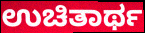
ಉಚಿತಾರ್ಥ